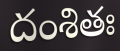
దంశితః